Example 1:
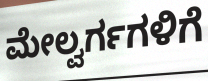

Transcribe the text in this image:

ಮೇಲ್ವರ್ಗಗಳಿಗೆ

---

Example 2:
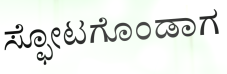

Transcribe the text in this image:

ಸ್ಫೋಟಗೊಂಡಾಗ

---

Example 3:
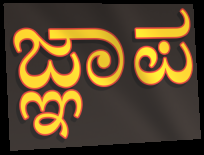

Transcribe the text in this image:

ಜ್ಞಾಪ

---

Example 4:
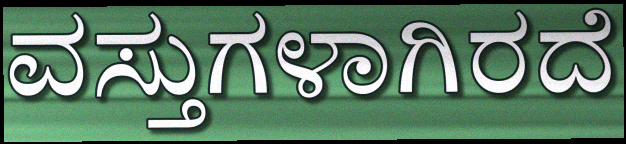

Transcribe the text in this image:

ವಸ್ತುಗಳಾಗಿರದೆ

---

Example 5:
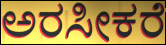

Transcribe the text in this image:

ಅರಸೀಕರೆ